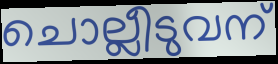
ചൊല്ലീടുവന്